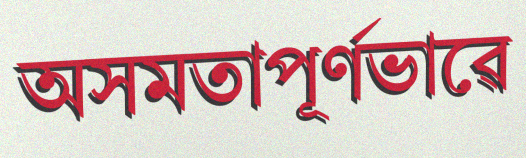
অসমতাপূৰ্ণভাৱে